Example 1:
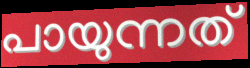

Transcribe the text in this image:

പായുന്നത്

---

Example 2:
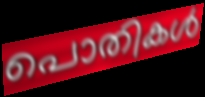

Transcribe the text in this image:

പൊതികൾ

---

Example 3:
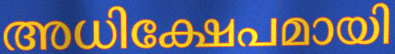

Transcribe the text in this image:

അധിക്ഷേപമായി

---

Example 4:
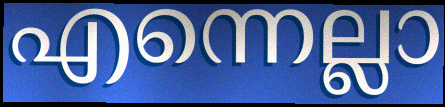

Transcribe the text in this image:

എന്നെല്ലാ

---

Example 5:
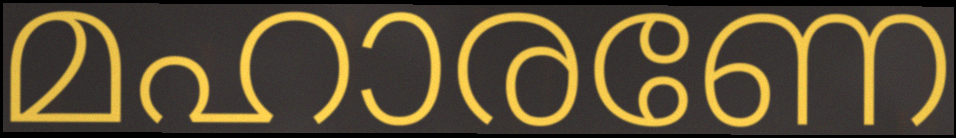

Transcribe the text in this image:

മഹാരണേ